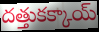
దత్తుకక్కాయ్